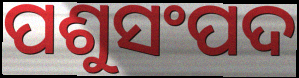
ପଶୁସଂପଦ